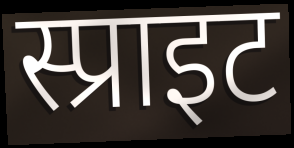
स्प्राइट